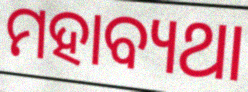
ମହାବ୍ୟଥା